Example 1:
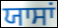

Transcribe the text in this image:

ਯਾਸਾਂ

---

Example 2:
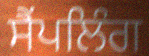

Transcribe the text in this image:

ਸੈਂਪਲਿੰਗ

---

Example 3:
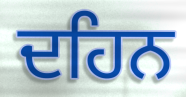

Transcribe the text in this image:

ਦਹਿਨ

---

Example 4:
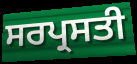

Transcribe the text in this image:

ਸਰਪ੍ਰਸਤੀ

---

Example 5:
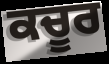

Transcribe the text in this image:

ਕਚੂਰ